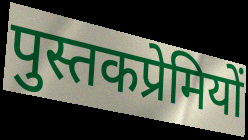
पुस्तकप्रेमियों